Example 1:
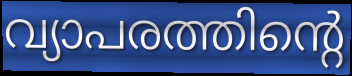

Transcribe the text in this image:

വ്യാപരത്തിന്റെ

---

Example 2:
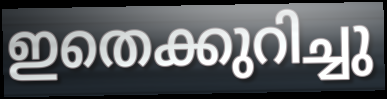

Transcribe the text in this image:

ഇതെക്കുറിച്ചു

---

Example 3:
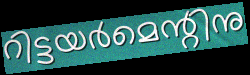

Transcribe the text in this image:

റിട്ടയർമെന്റിനു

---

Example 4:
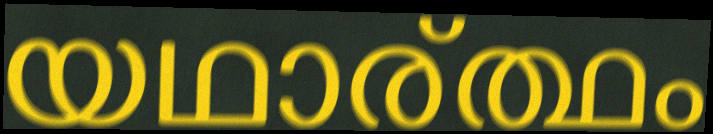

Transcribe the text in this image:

യഥാര്ത്ഥം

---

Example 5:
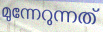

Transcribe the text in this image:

മുന്നേറുന്നത്